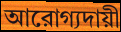
আরোগ্যদায়ী